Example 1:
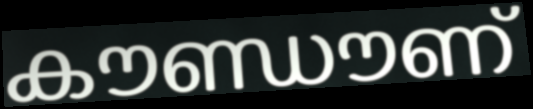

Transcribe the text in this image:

കൗണ്ഡൗണ്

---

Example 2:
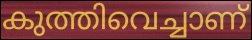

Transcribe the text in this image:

കുത്തിവെച്ചാണ്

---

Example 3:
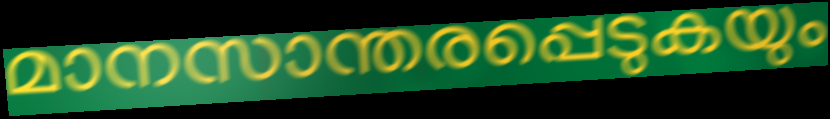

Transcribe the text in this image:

മാനസാന്തരപ്പെടുകയും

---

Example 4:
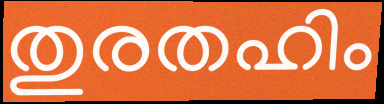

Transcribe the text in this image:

തുരതഹിം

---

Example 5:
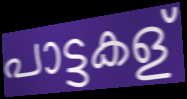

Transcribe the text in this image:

പാട്ടകള്